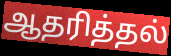
ஆதரித்தல்